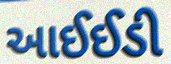
આઈઈડી